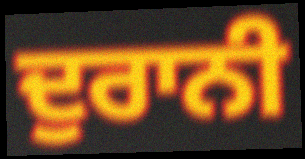
ਦੁਰਾਨੀ